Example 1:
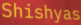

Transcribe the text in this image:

Shishyas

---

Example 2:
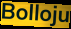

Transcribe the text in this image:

Bolloju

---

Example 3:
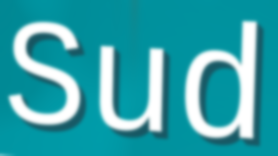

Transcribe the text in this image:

Sud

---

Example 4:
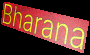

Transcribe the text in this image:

Bharana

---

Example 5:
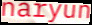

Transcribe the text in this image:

naryun